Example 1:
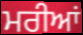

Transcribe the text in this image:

ਮਰੀਆਂ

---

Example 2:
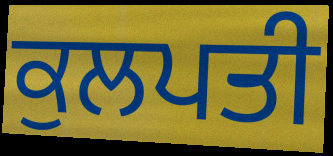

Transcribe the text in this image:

ਕੁਲਪਤੀ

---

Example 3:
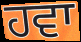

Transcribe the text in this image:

ਹਵਾ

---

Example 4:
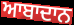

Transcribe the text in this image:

ਆਬਾਦਾਨ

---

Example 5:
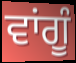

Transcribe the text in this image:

ਵਾਂਗੂੰ